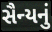
સૈન્યનું